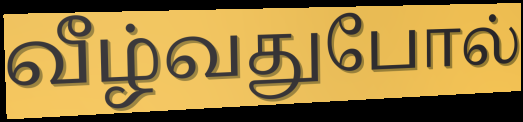
வீழ்வதுபோல்